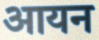
आयन